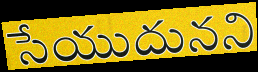
సేయుదునని